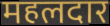
महलदार